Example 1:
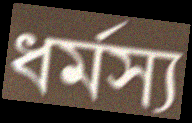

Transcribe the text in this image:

ধৰ্মস্য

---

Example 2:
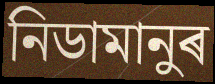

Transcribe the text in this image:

নিডামানুৰ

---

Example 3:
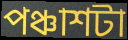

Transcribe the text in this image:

পঞ্চাশটা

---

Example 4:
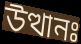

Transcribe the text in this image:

উত্থানঃ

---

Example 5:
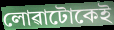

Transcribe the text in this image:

লোৱাটোকেই